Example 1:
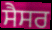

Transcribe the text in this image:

ਸੈਸਰ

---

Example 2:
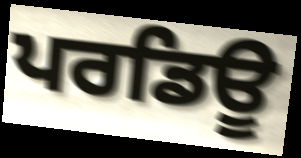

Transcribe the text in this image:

ਪਰਡਿਊ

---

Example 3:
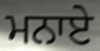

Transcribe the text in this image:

ਮਨਾਏ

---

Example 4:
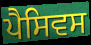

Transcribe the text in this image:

ਪੈਸਿਵਸ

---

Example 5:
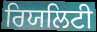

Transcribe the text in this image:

ਰਿਯਲਿਟੀ